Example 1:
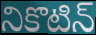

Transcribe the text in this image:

నికొటిన్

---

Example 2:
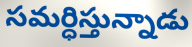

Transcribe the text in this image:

సమర్ధిస్తున్నాడు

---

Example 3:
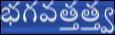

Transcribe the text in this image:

భగవత్తత్త్వ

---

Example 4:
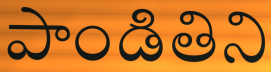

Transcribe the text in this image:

పాండితిని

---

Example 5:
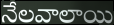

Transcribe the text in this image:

నేలవాలాయి